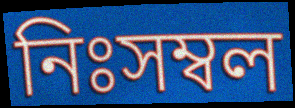
নিঃসম্বল